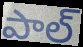
పాల్